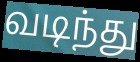
வடிந்து